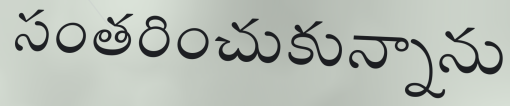
సంతరించుకున్నాను